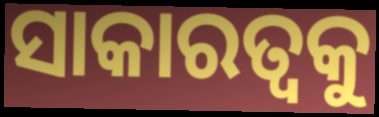
ସାକାରତ୍ଵକୁ